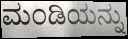
ಮಂಡಿಯನ್ನು